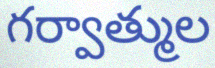
గర్వాత్ముల